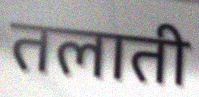
तलाती